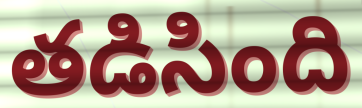
తడిసింది